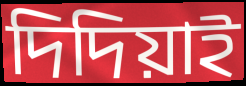
দিদিয়াই